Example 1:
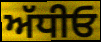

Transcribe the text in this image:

ਅੱਧੀਓ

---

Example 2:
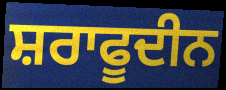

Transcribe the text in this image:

ਸ਼ਰਾਫੂਦੀਨ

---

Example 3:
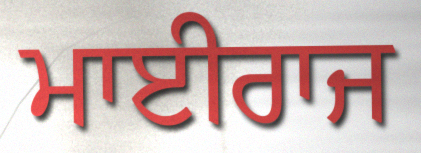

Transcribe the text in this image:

ਮਾਈਰਾਜ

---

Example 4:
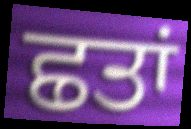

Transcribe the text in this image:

ਛਤਾਂ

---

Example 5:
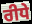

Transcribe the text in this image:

ਰੀਧੇ